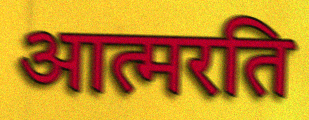
आत्मरति